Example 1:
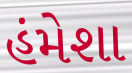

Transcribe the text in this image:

હંમેશા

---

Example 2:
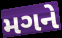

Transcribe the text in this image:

મગને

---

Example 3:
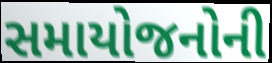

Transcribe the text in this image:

સમાયોજનોની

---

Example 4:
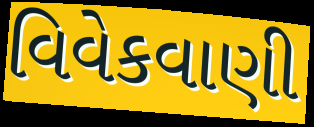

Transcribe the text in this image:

વિવેકવાણી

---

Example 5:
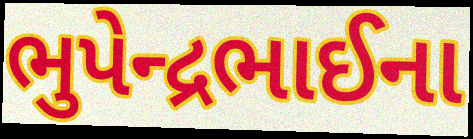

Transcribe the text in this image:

ભુપેન્દ્રભાઈના